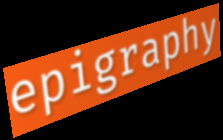
epigraphy